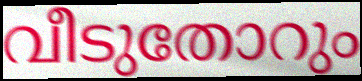
വീടുതോറും